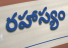
రహాస్యం